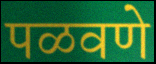
पळवणे